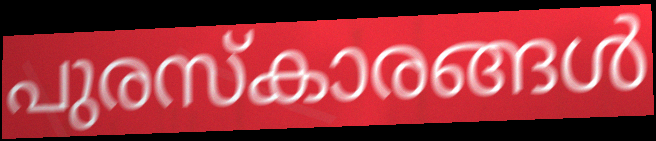
പുരസ്കാരങ്ങൾ